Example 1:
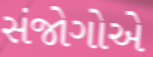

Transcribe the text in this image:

સંજોગોએ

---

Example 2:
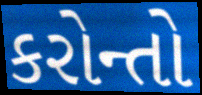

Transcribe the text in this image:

કરોન્તો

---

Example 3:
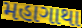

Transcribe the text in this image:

મહાગાથા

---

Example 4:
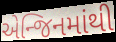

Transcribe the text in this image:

એન્જિનમાંથી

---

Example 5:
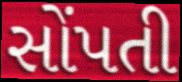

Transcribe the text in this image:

સોંપતી